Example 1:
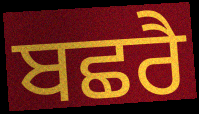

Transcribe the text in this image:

ਬਛਰੈ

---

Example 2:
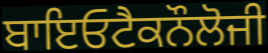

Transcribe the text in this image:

ਬਾਇਓਟੈਕਨੌਲੋਜੀ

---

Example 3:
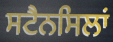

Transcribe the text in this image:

ਸਟੈਨਸਿਲਾਂ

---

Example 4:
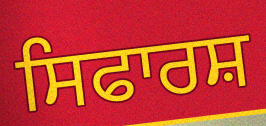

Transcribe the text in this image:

ਸਿਫਾਰਸ਼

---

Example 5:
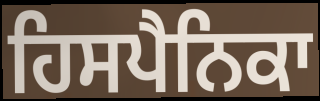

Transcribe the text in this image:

ਹਿਸਪੈਨਿਕਾ